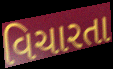
વિચારતા